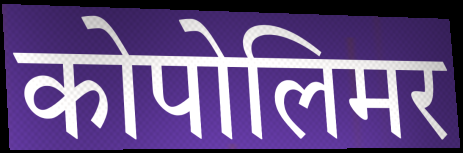
कोपोलिमर